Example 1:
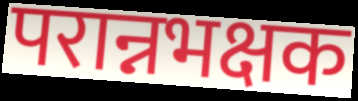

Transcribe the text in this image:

परान्नभक्षक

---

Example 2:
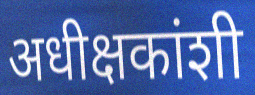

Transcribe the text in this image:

अधीक्षकांशी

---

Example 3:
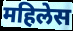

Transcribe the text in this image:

महिलेस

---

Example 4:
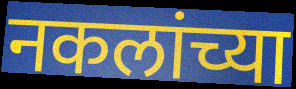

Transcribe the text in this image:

नकलांच्या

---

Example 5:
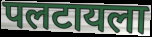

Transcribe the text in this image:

पलटायला